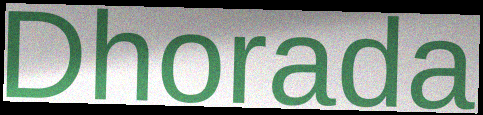
Dhorada